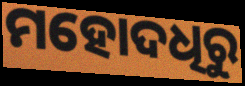
ମହୋଦଧିରୁ